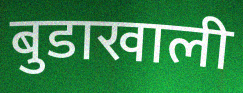
बुडाखाली